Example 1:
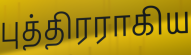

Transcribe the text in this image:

புத்திரராகிய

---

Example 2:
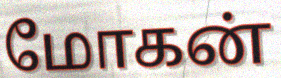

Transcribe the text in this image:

மோகன்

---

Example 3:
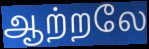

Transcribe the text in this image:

ஆற்றலே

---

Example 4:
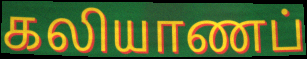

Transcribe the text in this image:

கலியாணப்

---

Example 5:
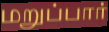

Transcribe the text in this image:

மறுப்பார்